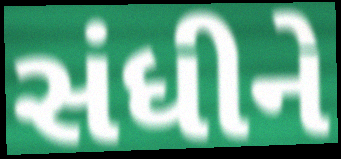
સંધીને